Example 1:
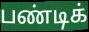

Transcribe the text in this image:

பண்டிக்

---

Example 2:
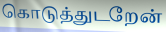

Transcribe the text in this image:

கொடுத்துடறேன்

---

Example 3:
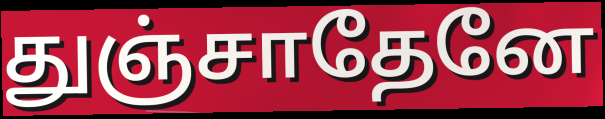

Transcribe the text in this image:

துஞ்சாதேனே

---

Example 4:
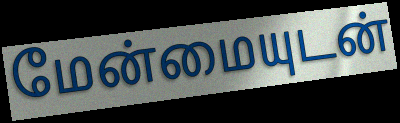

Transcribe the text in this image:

மேன்மையுடன்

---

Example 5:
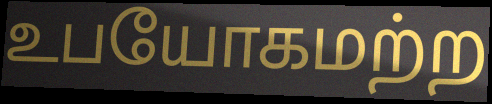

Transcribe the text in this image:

உபயோகமற்ற